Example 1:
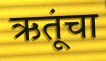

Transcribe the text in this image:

ऋतूंचा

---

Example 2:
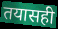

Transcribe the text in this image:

तयासही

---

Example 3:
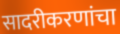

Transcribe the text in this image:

सादरीकरणांचा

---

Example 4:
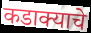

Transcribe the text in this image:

कडाक्याचे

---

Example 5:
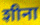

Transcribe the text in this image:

शीना